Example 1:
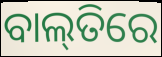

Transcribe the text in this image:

ବାଲ୍‌ତିରେ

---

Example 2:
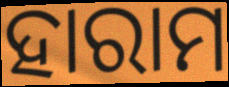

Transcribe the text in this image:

ହାରାମ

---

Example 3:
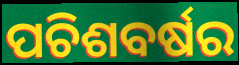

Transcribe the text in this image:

ପଚିଶବର୍ଷର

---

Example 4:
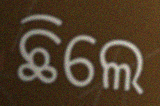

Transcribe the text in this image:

ଛିଲେ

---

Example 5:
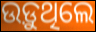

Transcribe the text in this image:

ଉଡ଼ୁଥିଲେ